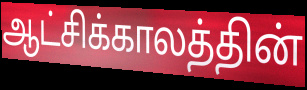
ஆட்சிக்காலத்தின்